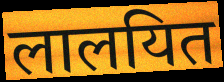
लालयित